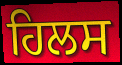
ਹਿਲਸ